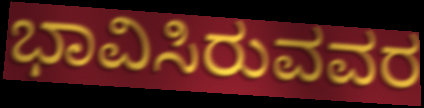
ಭಾವಿಸಿರುವವರ